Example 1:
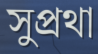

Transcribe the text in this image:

সুপ্রথা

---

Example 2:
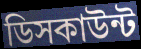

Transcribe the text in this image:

ডিসকাউন্ট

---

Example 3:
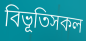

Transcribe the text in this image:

বিভূতিসকল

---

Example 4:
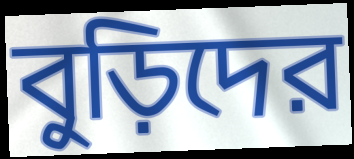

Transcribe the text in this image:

বুড়িদের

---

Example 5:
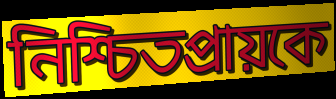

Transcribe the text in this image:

নিশ্চিতপ্রায়কে